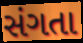
સંગતા